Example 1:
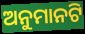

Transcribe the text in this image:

ଅନୁମାନଟି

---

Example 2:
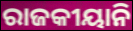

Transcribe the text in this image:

ରାଜକୀୟାନି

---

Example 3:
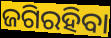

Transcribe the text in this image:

ଜଗିରହିବା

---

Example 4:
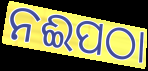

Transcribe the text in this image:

ନଈପଠା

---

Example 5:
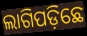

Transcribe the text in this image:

ଲାଗିପଡ଼ିଛେ